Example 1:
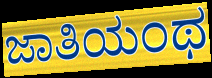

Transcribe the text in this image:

ಜಾತಿಯಂಥ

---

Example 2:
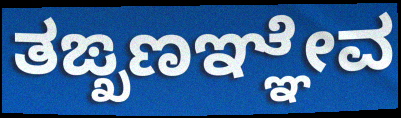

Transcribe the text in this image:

ತಙ್ಖಣಞ್ಞೇವ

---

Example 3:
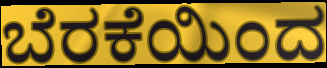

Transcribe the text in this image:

ಬೆರಕೆಯಿಂದ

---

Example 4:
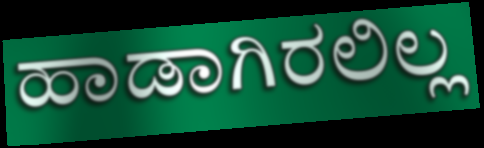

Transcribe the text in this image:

ಹಾಡಾಗಿರಲಿಲ್ಲ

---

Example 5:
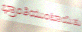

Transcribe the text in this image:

ಭ್ರಾಂತಿಯುಂಟಾಯಿತು